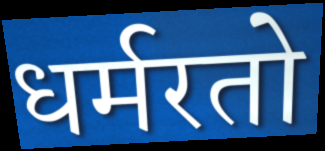
धर्मरतो